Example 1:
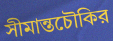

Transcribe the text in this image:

সীমান্তচৌকির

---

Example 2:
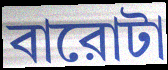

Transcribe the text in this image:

বারোটা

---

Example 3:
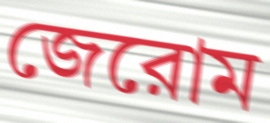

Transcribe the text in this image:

জেরোম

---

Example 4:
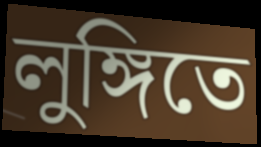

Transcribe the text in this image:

লুঙ্গিতে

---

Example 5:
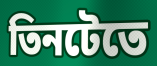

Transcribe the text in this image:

তিনটেতে